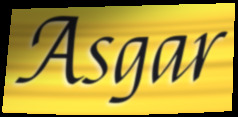
Asgar